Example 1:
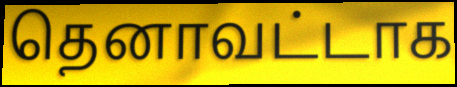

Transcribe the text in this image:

தெனாவட்டாக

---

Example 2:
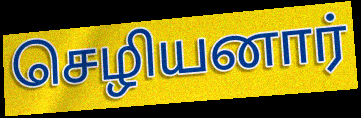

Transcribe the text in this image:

செழியனார்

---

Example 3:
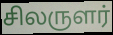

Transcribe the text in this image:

சிலருளர்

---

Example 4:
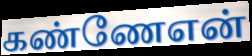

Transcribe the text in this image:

கண்ணேஎன்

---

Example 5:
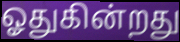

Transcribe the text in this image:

ஓதுகின்றது